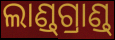
ଲାଣ୍ଡ୍‍ଗ୍ରାଣ୍ଡ୍